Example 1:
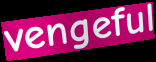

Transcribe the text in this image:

vengeful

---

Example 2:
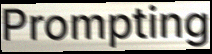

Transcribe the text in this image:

Prompting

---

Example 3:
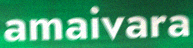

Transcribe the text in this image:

amaivara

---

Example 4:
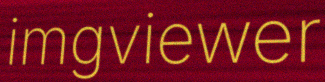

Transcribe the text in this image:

imgviewer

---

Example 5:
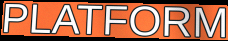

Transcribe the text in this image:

PLATFORM